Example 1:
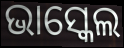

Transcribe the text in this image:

ଭାସ୍କେଲ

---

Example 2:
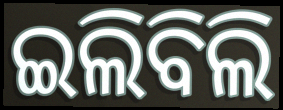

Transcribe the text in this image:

ଇଲିବିଲି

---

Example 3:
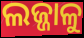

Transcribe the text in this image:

ଲଜ୍ଜାଳୁ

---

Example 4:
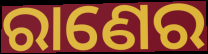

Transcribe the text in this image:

ରାଣେର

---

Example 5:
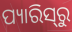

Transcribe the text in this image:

ପ୍ୟାରିସ୍‌ରୁ